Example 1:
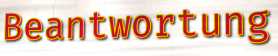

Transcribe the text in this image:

Beantwortung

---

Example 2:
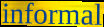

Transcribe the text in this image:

informal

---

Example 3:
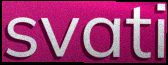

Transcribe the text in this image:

svati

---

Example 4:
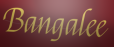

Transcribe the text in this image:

Bangalee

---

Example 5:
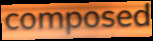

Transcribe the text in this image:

composed